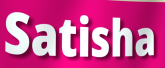
Satisha